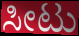
ಸೀಟು